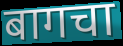
बागचा